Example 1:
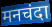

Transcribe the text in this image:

मनचंदा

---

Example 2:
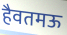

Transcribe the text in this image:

हैवतमऊ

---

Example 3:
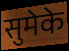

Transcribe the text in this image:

सुमेके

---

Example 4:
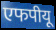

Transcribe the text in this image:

एफपीयू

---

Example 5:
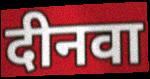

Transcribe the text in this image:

दीनवा